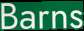
Barns